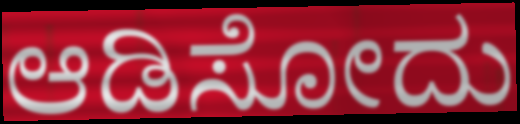
ಆಡಿಸೋದು